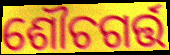
ଶୌଚଗର୍ତ୍ତ